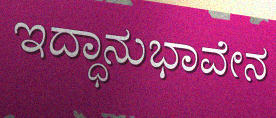
ಇದ್ಧಾನುಭಾವೇನ